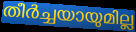
തീർച്ചയായുമില്ല